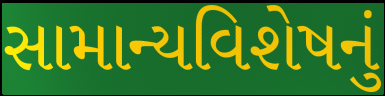
સામાન્યવિશેષનું